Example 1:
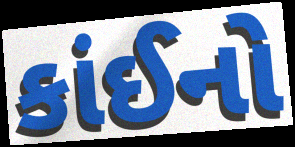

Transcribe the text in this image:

કાંઈનો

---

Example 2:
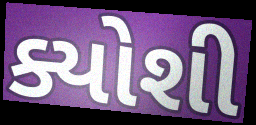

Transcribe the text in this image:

ક્યોશી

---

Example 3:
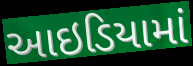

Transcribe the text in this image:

આઇડિયામાં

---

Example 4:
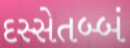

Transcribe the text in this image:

દસ્સેતબ્બં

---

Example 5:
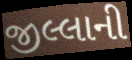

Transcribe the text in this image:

જીલ્લાની